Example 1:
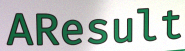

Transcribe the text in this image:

AResult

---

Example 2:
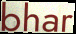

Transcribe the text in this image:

bhar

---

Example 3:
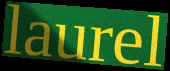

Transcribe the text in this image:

laurel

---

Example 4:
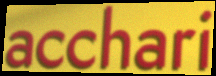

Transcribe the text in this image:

acchari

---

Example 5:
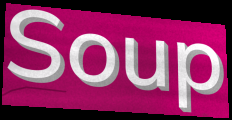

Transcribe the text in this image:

Soup